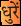
धुरें